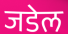
जडेल